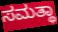
ಸಮತ್ಥಾ